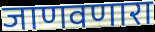
जाणवणारा